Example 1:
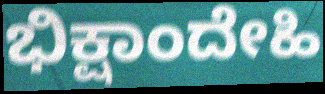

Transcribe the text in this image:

ಭಿಕ್ಷಾಂದೇಹಿ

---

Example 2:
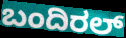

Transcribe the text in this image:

ಬಂದಿರಲ್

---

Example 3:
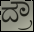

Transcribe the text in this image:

ದ್ರೌ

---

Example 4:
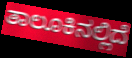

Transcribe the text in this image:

ತಾಲೂಕಿನಲ್ಲಿದೆ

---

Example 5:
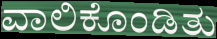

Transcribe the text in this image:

ವಾಲಿಕೊಂಡಿತು